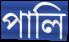
পালি